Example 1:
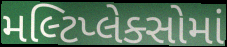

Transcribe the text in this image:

મલ્ટિપ્લેક્સોમાં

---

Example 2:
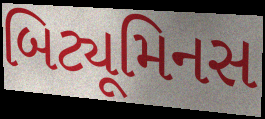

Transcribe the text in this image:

બિટ્યૂમિનસ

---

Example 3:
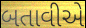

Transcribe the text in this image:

બતાવીએ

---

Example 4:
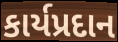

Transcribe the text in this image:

કાર્યપ્રદાન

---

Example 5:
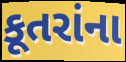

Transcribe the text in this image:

કૂતરાંના